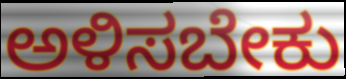
ಅಳಿಸಬೇಕು